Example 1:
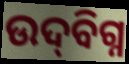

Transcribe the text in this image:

ଉଦ୍‍ବିଗ୍ନ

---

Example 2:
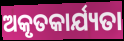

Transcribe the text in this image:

ଅକୃତକାର୍ଯ୍ୟତା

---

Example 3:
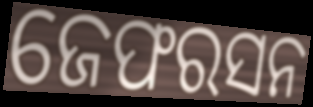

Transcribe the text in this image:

ଜେଫରସନ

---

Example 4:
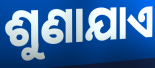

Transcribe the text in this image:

ଶୁଣାଯାଏ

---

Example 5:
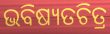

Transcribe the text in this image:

ଭବିଷ୍ୟତଚିତ୍ର